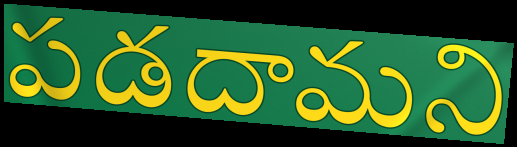
పడదామని